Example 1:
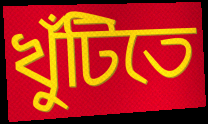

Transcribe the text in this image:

খুঁটিতে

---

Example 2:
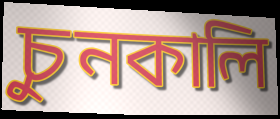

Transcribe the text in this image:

চুনকালি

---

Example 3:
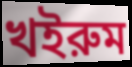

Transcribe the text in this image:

খইরুম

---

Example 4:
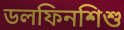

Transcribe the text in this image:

ডলফিনশিশু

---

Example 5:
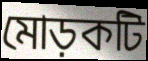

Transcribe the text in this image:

মোড়কটি